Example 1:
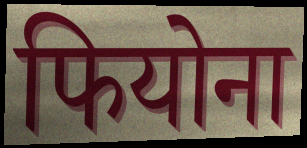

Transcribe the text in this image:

फियोना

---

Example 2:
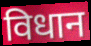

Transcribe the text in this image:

विधान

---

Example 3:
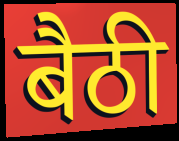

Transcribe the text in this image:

बैठी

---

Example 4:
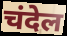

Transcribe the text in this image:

चंदेल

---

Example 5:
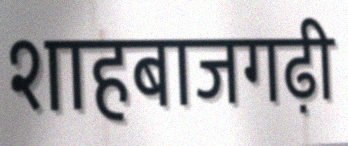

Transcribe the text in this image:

शाहबाजगढ़ी